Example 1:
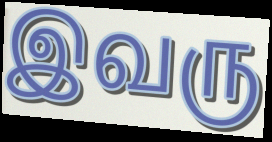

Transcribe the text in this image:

இவரு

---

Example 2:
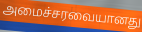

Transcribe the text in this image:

அமைச்சரவையானது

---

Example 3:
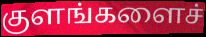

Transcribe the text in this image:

குளங்களைச்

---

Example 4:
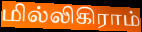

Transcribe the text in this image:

மில்லிகிராம்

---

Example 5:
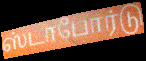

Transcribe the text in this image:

ஸ்டாபோர்டு